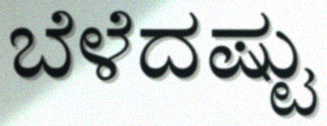
ಬೆಳೆದಷ್ಟು